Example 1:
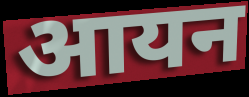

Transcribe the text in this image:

आयन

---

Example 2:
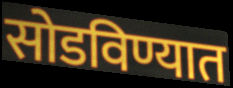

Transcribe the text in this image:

सोडविण्यात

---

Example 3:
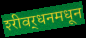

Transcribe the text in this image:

श्रीवर्धनमधून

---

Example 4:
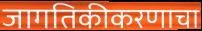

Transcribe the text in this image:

जागतिकीकरणाचा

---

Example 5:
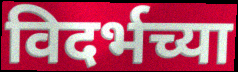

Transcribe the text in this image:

विदर्भच्या